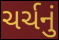
ચર્ચનું